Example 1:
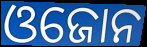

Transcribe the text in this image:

ଓଜୋନ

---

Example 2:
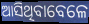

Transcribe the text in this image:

ଆସିଥିବାବେଳେ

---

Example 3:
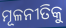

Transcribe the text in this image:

ମୂଳନୀତିକୁ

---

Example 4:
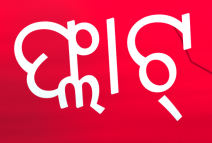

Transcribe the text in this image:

ଫ୍ଲାଟ୍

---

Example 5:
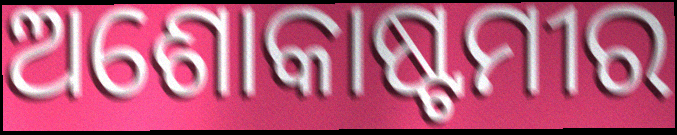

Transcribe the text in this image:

ଅଶୋକାଷ୍ଟମୀର